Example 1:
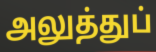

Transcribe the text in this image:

அலுத்துப்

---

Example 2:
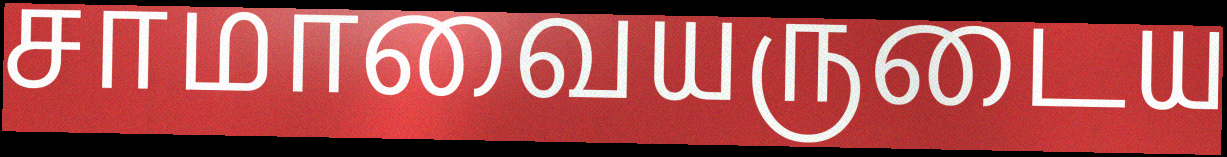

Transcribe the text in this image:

சாமாவையருடைய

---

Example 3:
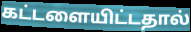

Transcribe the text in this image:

கட்டளையிட்டதால்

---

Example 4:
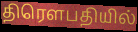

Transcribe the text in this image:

திரௌபதியில்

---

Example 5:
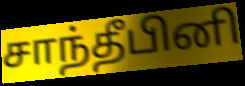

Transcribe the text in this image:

சாந்தீபினி